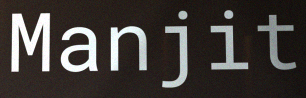
Manjit